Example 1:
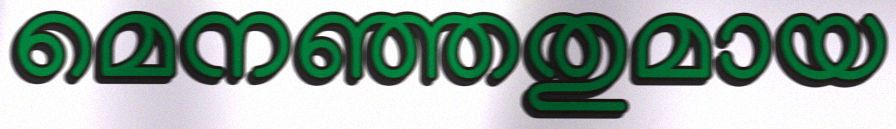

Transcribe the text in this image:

മെനഞ്ഞതുമായ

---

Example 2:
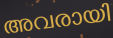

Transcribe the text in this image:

അവരായി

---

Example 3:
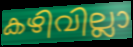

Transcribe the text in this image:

കഴിവില്ലാ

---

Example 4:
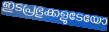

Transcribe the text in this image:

ഇടപ്രഭുക്കളുടേയോ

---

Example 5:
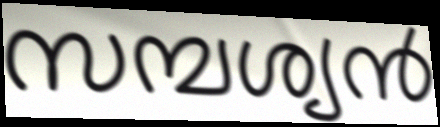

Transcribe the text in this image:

സമ്പശ്യൻ